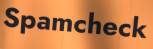
Spamcheck